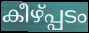
കീഴ്പ്പടം